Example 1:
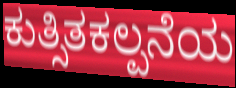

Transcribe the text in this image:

ಕುತ್ಸಿತಕಲ್ಪನೆಯ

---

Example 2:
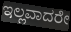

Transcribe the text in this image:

ಇಲ್ಲವಾದರೇ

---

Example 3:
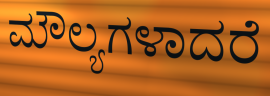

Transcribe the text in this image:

ಮೌಲ್ಯಗಳಾದರೆ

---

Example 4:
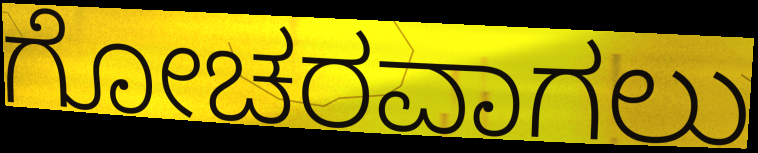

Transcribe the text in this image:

ಗೋಚರವಾಗಲು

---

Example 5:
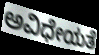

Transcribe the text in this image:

ಅವಿಧೇಯತೆ